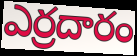
ఎర్రదారం